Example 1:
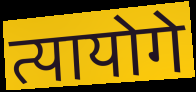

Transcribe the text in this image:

त्यायोगे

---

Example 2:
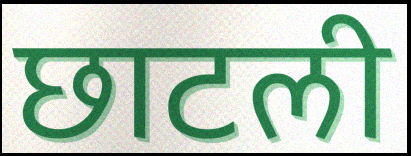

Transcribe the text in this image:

छाटली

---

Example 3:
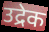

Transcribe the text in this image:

उद्रेक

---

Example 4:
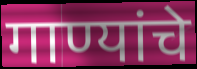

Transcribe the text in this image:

गाण्यांचे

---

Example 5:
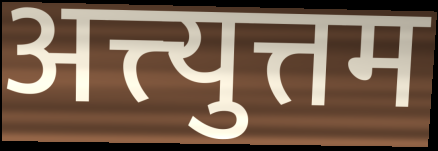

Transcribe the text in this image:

अत्त्युत्तम